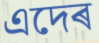
এদেৰ